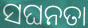
ସଘନତା